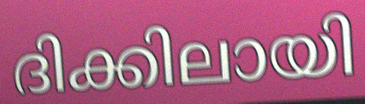
ദിക്കിലായി